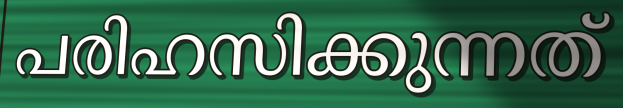
പരിഹസിക്കുന്നത്